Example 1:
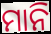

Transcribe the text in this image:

ମାନି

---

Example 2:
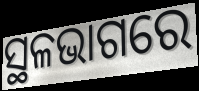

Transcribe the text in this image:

ସ୍ଥଳଭାଗରେ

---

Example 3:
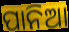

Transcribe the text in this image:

ପାନିଆ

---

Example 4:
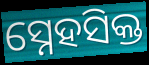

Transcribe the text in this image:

ସ୍ନେହସିକ୍ତ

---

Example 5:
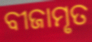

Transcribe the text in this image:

ବୀଜାମୃତ